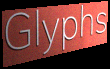
Glyphs